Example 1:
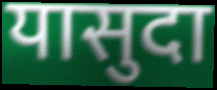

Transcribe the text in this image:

यासुदा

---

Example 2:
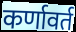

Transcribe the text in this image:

कर्णावर्त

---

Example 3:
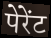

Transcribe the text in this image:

पेरेंट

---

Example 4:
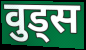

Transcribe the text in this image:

वुड्स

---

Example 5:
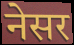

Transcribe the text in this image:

नेसर